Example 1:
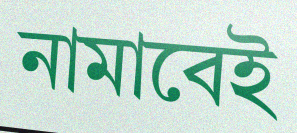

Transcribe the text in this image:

নামাবেই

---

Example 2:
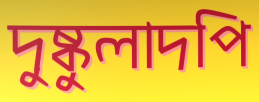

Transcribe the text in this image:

দুষ্কুলাদপি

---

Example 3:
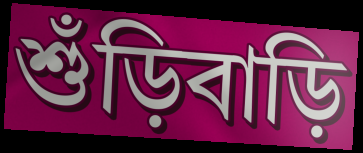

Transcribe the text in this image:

শুঁড়িবাড়ি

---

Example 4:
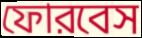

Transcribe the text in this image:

ফোরবেস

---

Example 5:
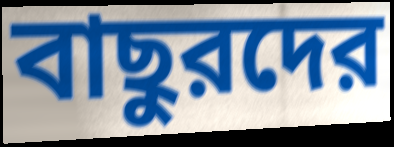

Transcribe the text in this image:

বাছুরদের